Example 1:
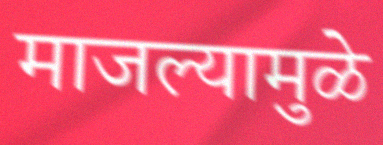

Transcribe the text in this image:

माजल्यामुळे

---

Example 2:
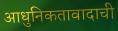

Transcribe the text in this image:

आधुनिकतावादाची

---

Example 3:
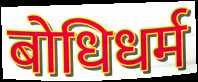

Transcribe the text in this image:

बोधिधर्म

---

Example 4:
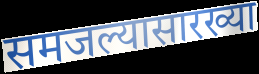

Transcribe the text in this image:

समजल्यासारख्या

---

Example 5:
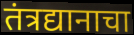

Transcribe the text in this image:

तंत्रद्यानाचा